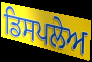
ਡਿਸਪਲੇਅ